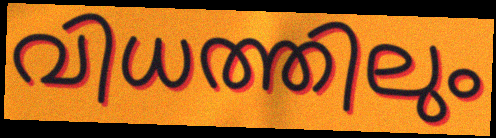
വിധത്തിലും